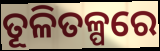
ତୂଳିତଳ୍ପରେ